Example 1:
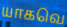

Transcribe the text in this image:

யாகவெ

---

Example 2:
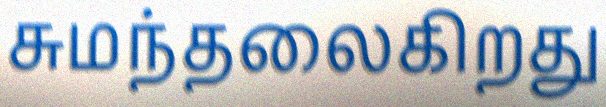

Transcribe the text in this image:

சுமந்தலைகிறது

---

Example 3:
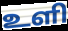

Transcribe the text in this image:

உளி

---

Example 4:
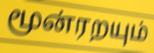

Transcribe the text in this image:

மூன்ரறயும்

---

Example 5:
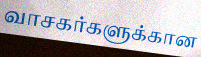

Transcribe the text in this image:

வாசகர்களுக்கான